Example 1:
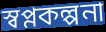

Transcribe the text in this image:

স্বপ্নকল্পনা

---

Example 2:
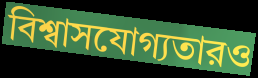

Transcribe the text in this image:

বিশ্বাসযোগ্যতারও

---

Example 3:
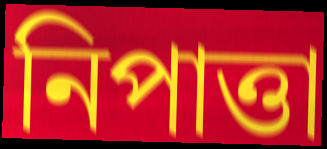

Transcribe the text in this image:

নিপাত্তা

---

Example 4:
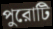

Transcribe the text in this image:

পুরোটি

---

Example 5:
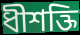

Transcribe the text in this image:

ধীশক্তি